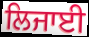
ਲਿਜਾਈ